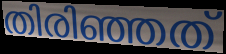
തിരിഞ്ഞത്